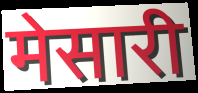
मेसारी